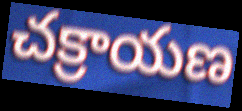
చక్రాయణ